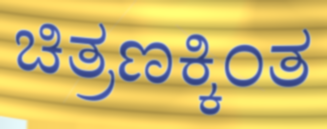
ಚಿತ್ರಣಕ್ಕಿಂತ